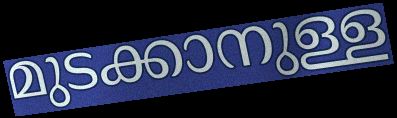
മുടക്കാനുള്ള